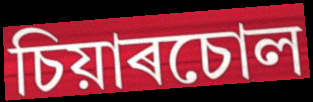
চিয়াৰচোল